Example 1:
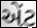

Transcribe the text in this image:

એંટ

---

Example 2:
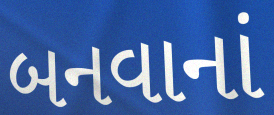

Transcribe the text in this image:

બનવાનાં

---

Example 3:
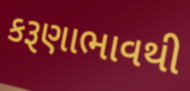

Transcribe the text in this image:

કરૂણાભાવથી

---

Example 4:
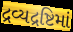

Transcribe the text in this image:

દ્રવ્યદ્રષ્ટિમાં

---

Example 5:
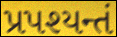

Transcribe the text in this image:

પ્રપશ્યન્તં